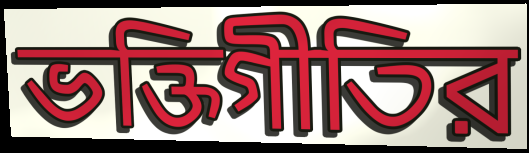
ভক্তিগীতির